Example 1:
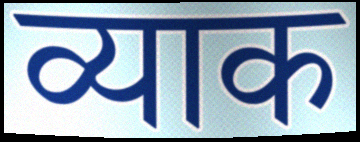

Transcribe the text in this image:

व्याक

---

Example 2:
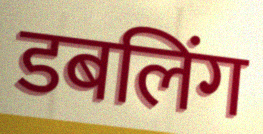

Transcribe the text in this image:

डबलिंग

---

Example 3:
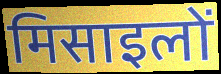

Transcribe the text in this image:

मिसाइलों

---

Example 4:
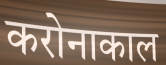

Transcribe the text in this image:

करोनाकाल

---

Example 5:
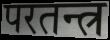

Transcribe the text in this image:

परतन्त्र